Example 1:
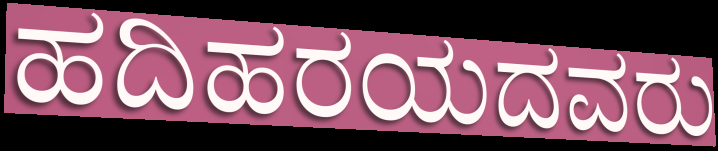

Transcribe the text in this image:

ಹದಿಹರಯದವರು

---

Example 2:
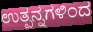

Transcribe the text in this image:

ಉತ್ಪನ್ನಗಳಿಂದ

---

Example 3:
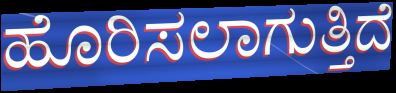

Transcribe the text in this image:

ಹೊರಿಸಲಾಗುತ್ತಿದೆ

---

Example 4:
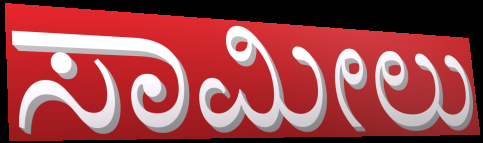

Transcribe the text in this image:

ಸಾಮೀಲು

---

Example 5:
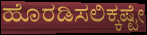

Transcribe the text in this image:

ಹೊರಡಿಸಲಿಕ್ಕಷ್ಟೇ